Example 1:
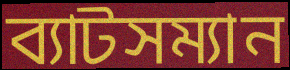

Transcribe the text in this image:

ব্যাটসম্যান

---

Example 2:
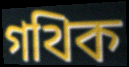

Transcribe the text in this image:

গথিক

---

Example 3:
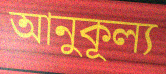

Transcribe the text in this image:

আনুকূল্য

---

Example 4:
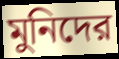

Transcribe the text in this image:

মুনিদের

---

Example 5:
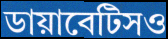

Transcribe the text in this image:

ডায়াবেটিসও